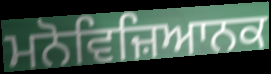
ਮਨੋਵਿਜ਼ਿਆਨਕ